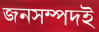
জনসম্পদই